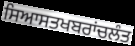
ਸਿਆਸਤਖਬਰਾਂਚਲੰਤ